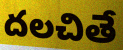
దలచితే